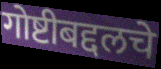
गोष्टीबद्दलचे